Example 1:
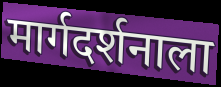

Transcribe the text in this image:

मार्गदर्शनाला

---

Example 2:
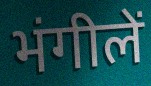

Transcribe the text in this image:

भंगीलें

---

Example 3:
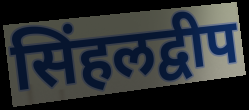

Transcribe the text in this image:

सिंहलद्वीप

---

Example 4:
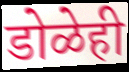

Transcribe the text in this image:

डोळेही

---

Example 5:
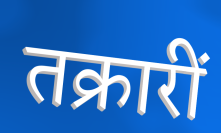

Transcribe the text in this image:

तक्रारीं